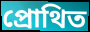
প্রোথিত